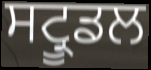
ਸਟ੍ਰੂਡਲ